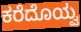
ಕರೆದೊಯ್ವ